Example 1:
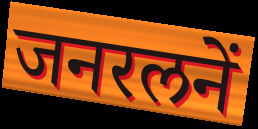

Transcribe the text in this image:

जनरलनें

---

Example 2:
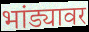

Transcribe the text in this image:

भांड्यावर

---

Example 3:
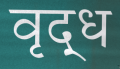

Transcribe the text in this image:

वृद्ध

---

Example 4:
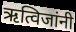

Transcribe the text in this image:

ऋत्विजांनी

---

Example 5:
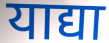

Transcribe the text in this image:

याद्या